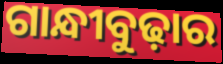
ଗାନ୍ଧୀବୁଢ଼ାର